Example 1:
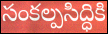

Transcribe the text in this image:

సంకల్పసిద్ధికి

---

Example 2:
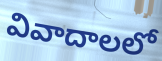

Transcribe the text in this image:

వివాదాలలో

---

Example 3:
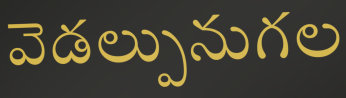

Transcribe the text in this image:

వెడల్పునుగల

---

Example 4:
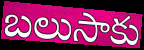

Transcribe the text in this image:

బలుసాకు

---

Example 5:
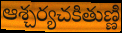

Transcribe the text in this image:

ఆశ్చర్యచకితుణ్ణి